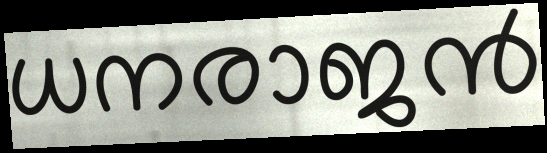
ധനരാജൻ